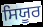
ਸਿਯੂਰ